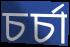
চৰ্চা